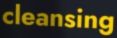
cleansing